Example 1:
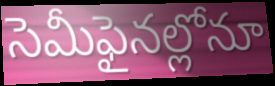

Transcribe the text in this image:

సెమీఫైనల్లోనూ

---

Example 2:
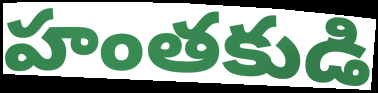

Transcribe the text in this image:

హంతకుడి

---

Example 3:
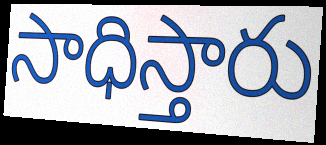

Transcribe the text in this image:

సాధిస్తారు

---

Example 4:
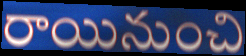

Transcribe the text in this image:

రాయినుంచి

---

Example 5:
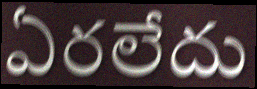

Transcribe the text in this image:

ఏరలేదు